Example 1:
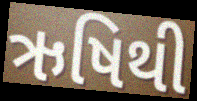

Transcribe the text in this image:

ઋષિથી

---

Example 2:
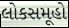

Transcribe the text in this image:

લોકસમૂહો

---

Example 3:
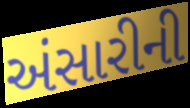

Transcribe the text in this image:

અંસારીની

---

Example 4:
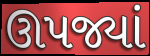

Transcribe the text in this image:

ઊપજ્યાં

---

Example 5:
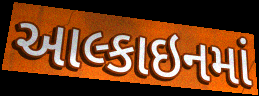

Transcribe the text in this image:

આલ્કાઇનમાં